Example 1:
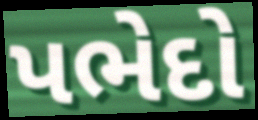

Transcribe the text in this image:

પભેદો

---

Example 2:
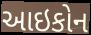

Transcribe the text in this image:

આઇકોન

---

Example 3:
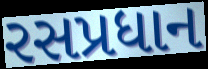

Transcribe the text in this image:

રસપ્રધાન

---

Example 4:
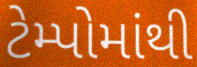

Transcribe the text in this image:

ટેમ્પોમાંથી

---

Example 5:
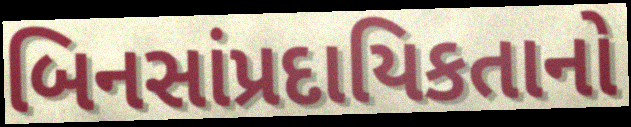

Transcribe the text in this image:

બિનસાંપ્રદાયિકતાનો